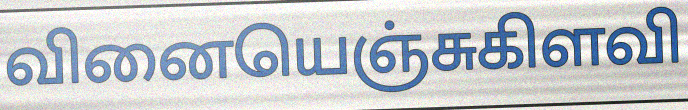
வினையெஞ்சுகிளவி